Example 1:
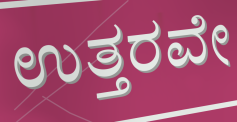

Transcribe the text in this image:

ಉತ್ತರವೇ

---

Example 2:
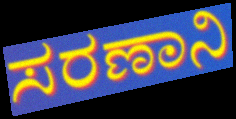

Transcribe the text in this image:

ಸರಣಾನಿ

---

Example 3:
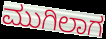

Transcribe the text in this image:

ಮುಗಿಲಾಗ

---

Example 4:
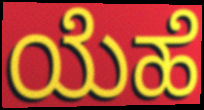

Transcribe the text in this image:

ಯೆಹೆ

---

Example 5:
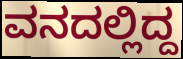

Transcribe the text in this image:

ವನದಲ್ಲಿದ್ದ